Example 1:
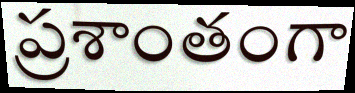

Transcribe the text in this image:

ప్రశాంతంగా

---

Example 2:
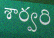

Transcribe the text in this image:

శార్వరి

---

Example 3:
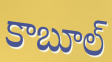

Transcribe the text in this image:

కాబూల్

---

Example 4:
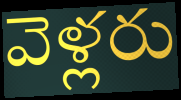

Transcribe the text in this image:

వెళ్లరు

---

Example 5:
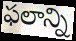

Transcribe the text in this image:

ఫలాన్ని